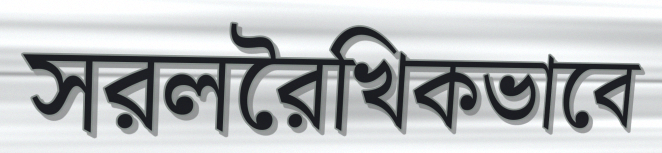
সরলরৈখিকভাবে